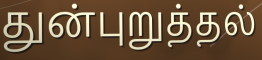
துன்புறுத்தல்